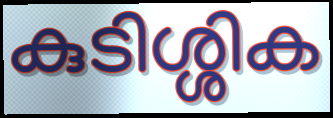
കുടിശ്ശിക